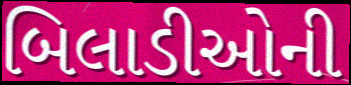
બિલાડીઓની